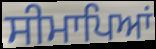
ਸੀਮਾਪਿਆਂ